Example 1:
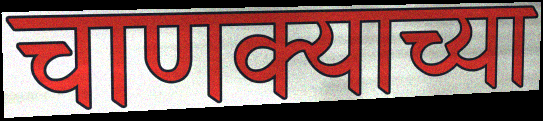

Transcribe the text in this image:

चाणक्याच्या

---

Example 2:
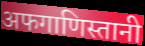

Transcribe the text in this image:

अफगाणिस्तानी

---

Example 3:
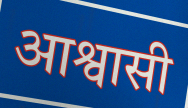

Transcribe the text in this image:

आश्वासी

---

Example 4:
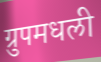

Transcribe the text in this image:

ग्रुपमधली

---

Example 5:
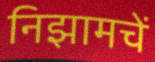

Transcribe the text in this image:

निझामचें